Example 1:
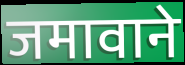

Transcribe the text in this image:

जमावाने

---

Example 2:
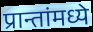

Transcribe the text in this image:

प्रान्तांमध्ये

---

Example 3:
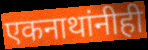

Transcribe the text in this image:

एकनाथांनीही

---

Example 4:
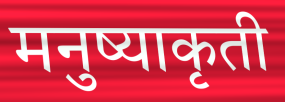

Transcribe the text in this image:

मनुष्याकृती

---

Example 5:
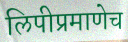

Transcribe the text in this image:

लिपीप्रमाणेच